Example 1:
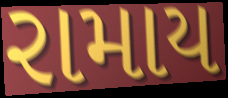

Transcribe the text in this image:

રામાય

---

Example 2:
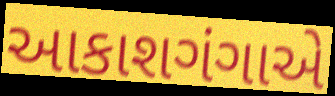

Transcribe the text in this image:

આકાશગંગાએ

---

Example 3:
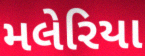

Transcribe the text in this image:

મલેરિયા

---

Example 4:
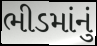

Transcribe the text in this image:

ભીડમાંનું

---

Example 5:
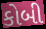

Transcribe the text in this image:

કોબી